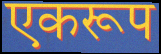
एकरूप